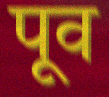
पूव